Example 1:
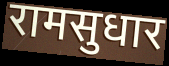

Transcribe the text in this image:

रामसुधार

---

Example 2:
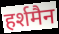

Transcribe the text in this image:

हर्शमैन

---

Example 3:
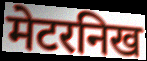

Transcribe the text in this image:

मेटरनिख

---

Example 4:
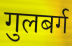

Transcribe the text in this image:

गुलबर्ग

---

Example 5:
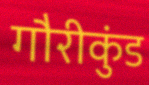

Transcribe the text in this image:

गौरीकुंड